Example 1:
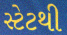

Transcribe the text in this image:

સ્ટેટથી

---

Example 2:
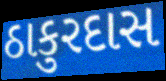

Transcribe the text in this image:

ઠાકુરદાસ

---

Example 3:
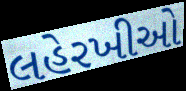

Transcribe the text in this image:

લહેરખીઓ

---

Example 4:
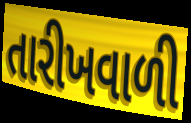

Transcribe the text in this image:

તારીખવાળી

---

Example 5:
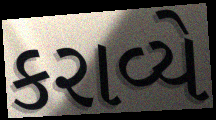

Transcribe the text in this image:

કરાવ્યે